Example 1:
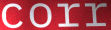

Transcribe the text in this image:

corr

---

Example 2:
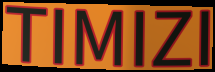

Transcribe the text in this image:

TIMIZI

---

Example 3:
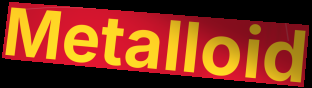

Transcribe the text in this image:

Metalloid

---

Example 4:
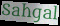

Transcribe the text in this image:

Sahgal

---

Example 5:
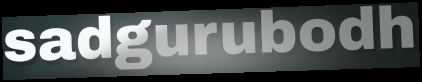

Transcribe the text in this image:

sadgurubodh